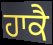
ਹਾਕੈ